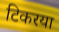
टिकरया